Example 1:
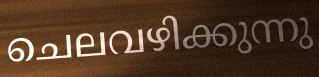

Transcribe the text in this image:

ചെലവഴിക്കുന്നു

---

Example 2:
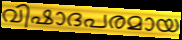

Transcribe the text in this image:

വിഷാദപരമായ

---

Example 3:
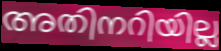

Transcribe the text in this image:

അതിനറിയില്ല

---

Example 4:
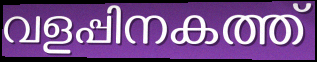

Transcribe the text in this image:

വളപ്പിനകത്ത്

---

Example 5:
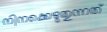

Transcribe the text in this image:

നിനക്കെഴുതുന്നത്